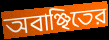
অবাঞ্ছিতের